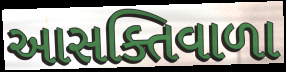
આસક્તિવાળા